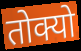
तोक्यो